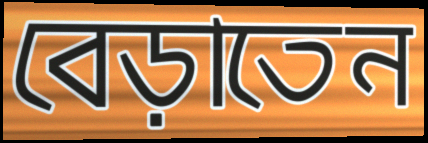
বেড়াতেন